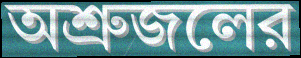
অশ্রুজলের